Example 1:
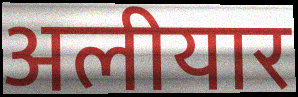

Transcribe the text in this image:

अलीयार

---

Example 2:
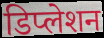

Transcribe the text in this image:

डिप्लेशन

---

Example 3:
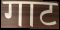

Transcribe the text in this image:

गाट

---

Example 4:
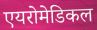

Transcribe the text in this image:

एयरोमेडिकल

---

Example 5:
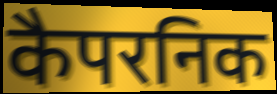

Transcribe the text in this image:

कैपरनिक